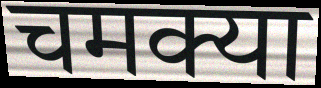
चमक्या